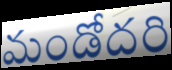
మండోదరి